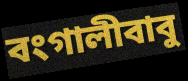
বংগালীবাবু